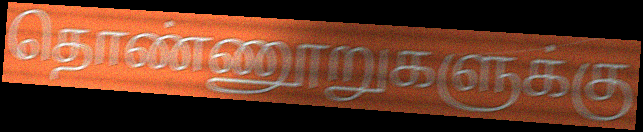
தொண்ணூறுகளுக்கு